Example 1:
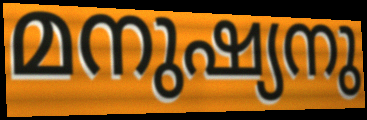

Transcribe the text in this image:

മനുഷ്യനു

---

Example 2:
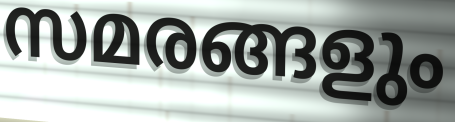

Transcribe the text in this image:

സമരങ്ങളും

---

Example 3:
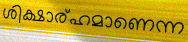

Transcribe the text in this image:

ശിക്ഷാര്ഹമാണെന്ന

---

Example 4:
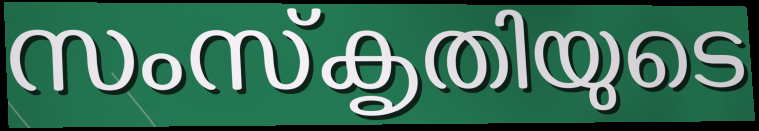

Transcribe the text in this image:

സംസ്‌കൃതിയുടെ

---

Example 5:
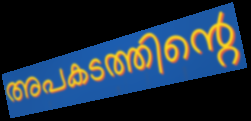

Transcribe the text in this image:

അപകടത്തിന്റെ